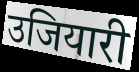
उजियारी